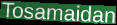
Tosamaidan